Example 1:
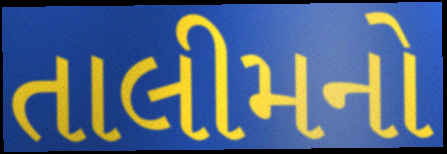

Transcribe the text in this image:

તાલીમનો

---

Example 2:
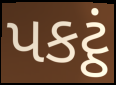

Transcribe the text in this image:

પકટ્ઠં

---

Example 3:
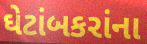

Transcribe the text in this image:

ઘેટાંબકરાંના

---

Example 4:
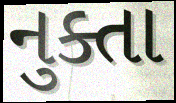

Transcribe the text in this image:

નુક્તા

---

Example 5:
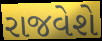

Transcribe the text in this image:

રાજવેશે